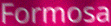
Formosa